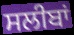
ਸਲੀਬਾਂ